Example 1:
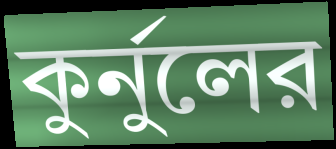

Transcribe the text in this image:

কুর্নুলের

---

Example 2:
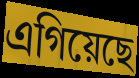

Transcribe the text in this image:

এগিয়েছে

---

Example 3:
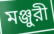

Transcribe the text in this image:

মঞ্জুরী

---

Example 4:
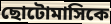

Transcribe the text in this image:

ছোটোমাসিকে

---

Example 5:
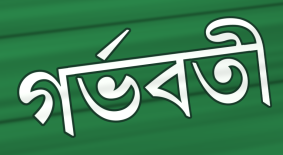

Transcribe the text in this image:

গর্ভবতী